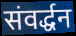
संवर्द्धन